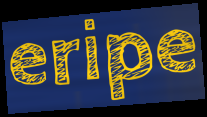
eripe